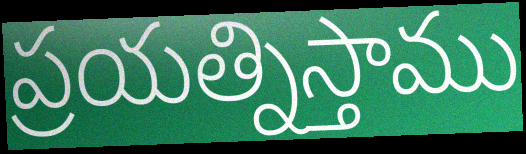
ప్రయత్నిస్తాము